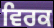
ਵਿਰਕ